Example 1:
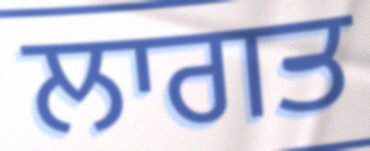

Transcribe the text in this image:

ਲਾਗਤ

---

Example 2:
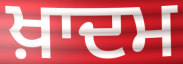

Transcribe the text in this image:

ਖ਼ਾਦਮ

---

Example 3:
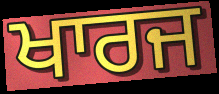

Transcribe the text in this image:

ਖਾਰਜ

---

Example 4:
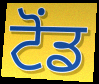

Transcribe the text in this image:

ਟੋਂਡ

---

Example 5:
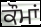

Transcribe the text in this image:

ਕੌਮਾਂ